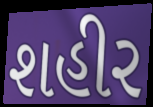
શહીર